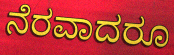
ನೆರವಾದರೂ